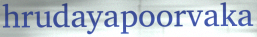
hrudayapoorvaka